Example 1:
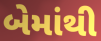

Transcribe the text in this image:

બેમાંથી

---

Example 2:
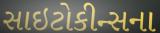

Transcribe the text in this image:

સાઇટોકીન્સના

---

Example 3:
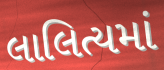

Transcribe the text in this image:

લાલિત્યમાં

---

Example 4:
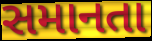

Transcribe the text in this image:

સમાનતા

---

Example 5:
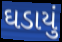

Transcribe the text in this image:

ઘડાયું